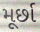
મૂર્છા